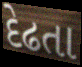
દેઢતા